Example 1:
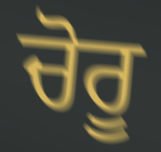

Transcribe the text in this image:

ਚੋਰੂ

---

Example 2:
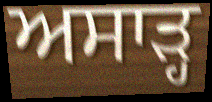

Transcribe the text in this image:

ਅਸਾੜ੍ਹ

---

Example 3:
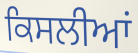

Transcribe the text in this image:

ਕਿਸਲੀਆਂ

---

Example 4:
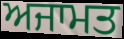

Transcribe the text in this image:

ਅਜਾਮਤ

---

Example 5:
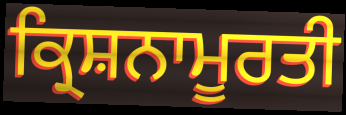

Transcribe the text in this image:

ਕ੍ਰਿਸ਼ਨਾਮੂਰਤੀ